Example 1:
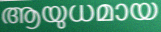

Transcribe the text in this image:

ആയുധമായ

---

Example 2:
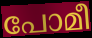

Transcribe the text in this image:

പോമീ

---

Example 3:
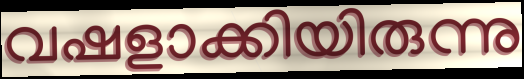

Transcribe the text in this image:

വഷളാക്കിയിരുന്നു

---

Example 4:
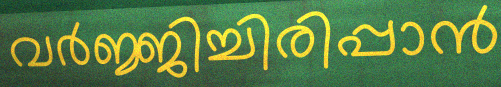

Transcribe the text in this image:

വർജ്ജിച്ചിരിപ്പാൻ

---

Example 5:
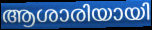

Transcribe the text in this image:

ആശാരിയായി